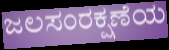
ಜಲಸಂರಕ್ಷಣೆಯ